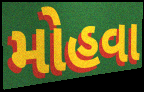
મોહવા